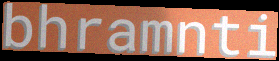
bhramnti